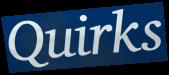
Quirks